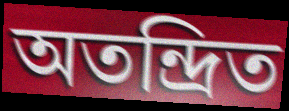
অতন্দ্রিত